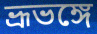
ভ্রূভঙ্গে